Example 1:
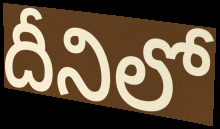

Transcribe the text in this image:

దీనిలో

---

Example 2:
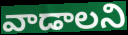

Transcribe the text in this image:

వాడాలని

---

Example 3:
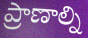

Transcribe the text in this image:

ప్రాణాల్ని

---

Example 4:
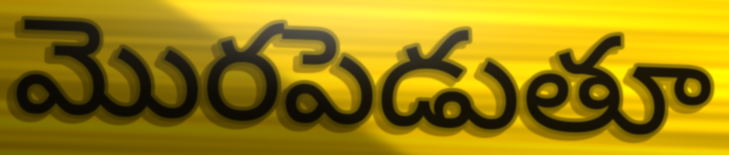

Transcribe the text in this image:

మొరపెడుతూ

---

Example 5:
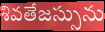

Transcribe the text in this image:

శివతేజస్సును